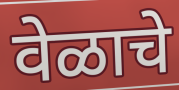
वेळाचे